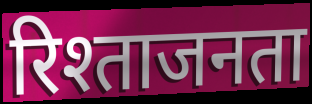
रिश्ताजनता